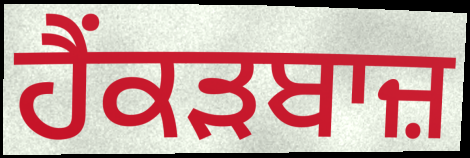
ਹੈਂਕੜਬਾਜ਼